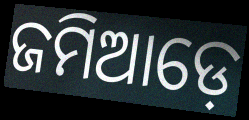
ଜମିଆଡ଼େ